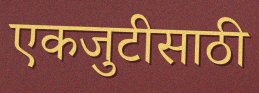
एकजुटीसाठी